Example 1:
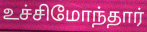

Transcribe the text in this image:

உச்சிமோந்தார்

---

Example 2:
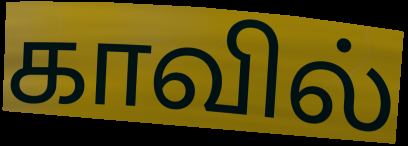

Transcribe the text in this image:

காவில்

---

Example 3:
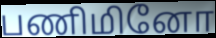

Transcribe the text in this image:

பணிமினோ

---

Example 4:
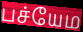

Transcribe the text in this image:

பச்யேம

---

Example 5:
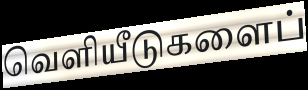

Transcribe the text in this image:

வெளியீடுகளைப்